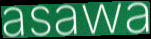
asawa